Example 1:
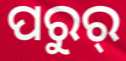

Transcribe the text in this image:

ପରୁର୍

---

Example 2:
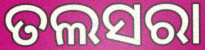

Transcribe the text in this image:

ତଲସରା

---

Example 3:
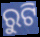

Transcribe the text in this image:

ରୁଟି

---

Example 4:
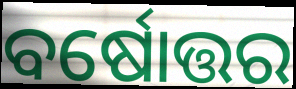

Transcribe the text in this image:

ବର୍ଷୋତ୍ତର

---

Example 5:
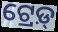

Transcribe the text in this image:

ଟ୍ରେଡ଼୍